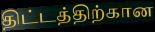
திட்டத்திற்கான